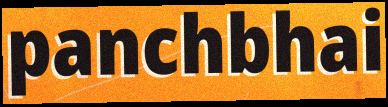
panchbhai